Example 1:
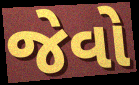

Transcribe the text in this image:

જેવો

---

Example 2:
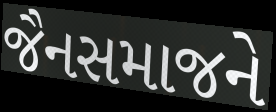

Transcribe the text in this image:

જૈનસમાજને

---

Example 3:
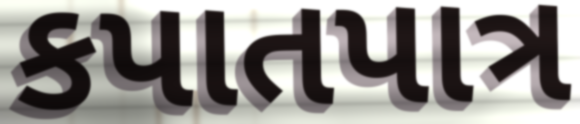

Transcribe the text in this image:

કપાતપાત્ર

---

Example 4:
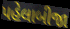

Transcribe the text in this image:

પહેલાબીજા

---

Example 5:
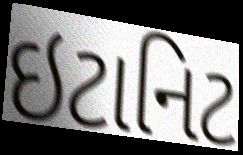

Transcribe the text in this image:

ઇટાનિટ